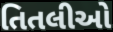
તિતલીઓ